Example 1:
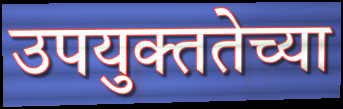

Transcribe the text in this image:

उपयुक्ततेच्या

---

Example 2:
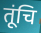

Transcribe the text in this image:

तूंचि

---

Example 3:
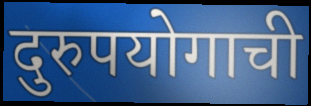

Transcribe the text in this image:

दुरुपयोगाची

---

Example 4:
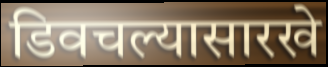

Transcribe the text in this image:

डिवचल्यासारखे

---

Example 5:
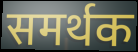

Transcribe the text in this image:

समर्थक